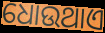
ଧୋଉଥାଏ